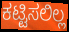
ಕಟ್ಟಿಸಲಿಲ್ಲ